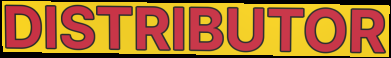
DISTRIBUTOR